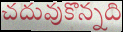
చదువుకొన్నది